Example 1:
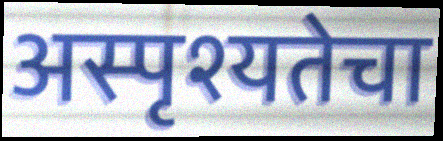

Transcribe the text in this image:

अस्पृश्यतेचा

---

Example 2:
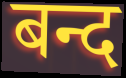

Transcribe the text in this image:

बन्द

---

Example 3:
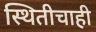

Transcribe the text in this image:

स्थितीचाही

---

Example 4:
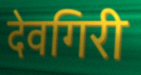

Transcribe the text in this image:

देवगिरी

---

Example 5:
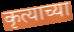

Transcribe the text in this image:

कृत्याच्या